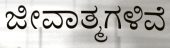
ಜೀವಾತ್ಮಗಳಿವೆ